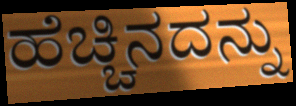
ಹೆಚ್ಚಿನದನ್ನು